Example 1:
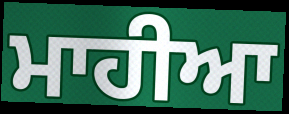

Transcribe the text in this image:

ਮਾਹੀਆ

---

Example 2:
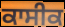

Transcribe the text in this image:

ਕਾਸੀਕ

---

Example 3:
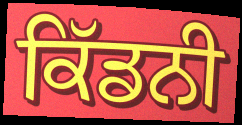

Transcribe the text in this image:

ਕਿੱਡਨੀ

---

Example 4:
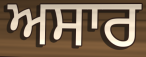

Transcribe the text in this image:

ਅਸਾਰ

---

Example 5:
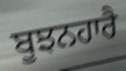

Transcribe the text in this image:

ਬੂਝਨਹਾਰੈ